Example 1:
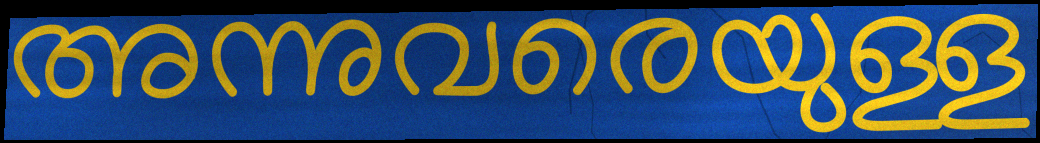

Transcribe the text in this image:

അന്നുവരെയുള്ള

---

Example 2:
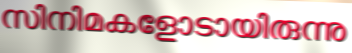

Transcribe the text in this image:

സിനിമകളോടായിരുന്നു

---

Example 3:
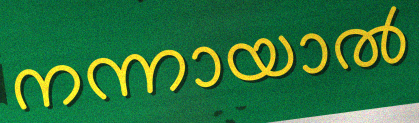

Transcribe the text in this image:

നന്നായാൽ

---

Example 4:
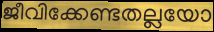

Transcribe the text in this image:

ജീവിക്കേണ്ടതല്ലയോ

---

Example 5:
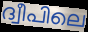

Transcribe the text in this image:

ദ്വീപിലെ